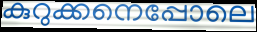
കുറുക്കനെപ്പോലെ